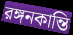
রঙ্গনকান্তি